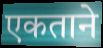
एकताने